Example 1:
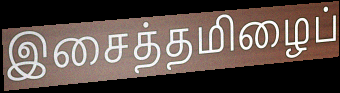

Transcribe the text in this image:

இசைத்தமிழைப்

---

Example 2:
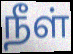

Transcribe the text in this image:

நீள்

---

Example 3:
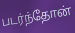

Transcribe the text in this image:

படர்ந்தோன்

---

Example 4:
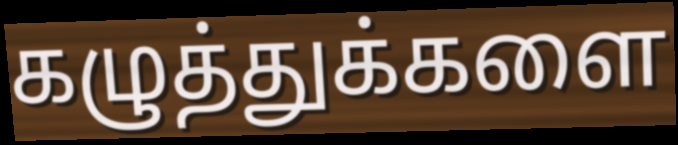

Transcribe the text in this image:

கழுத்துக்களை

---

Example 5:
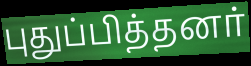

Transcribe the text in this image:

புதுப்பித்தனர்